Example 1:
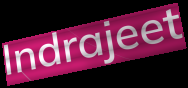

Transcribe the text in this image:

Indrajeet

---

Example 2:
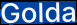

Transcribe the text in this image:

Golda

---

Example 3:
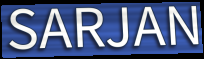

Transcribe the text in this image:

SARJAN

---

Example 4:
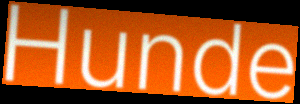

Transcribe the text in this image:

Hunde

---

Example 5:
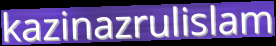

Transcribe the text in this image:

kazinazrulislam